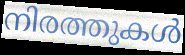
നിരത്തുകൾ